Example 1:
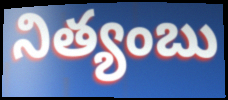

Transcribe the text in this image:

నిత్యంబు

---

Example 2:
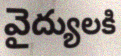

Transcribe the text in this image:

వైద్యులకి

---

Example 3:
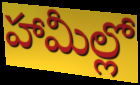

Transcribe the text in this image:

హామీల్లో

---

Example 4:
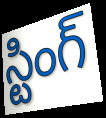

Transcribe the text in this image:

స్టింగ్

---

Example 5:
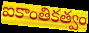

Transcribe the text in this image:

ఐకాంతికత్వం